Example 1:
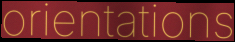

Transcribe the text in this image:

orientations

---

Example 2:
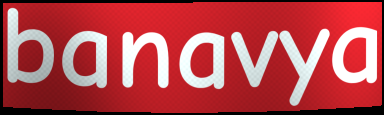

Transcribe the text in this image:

banavya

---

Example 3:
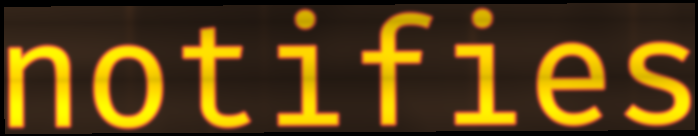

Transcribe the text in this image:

notifies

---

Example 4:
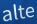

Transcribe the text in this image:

alte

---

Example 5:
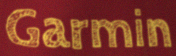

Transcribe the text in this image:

Garmin